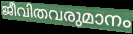
ജീവിതവരുമാനം